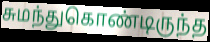
சுமந்துகொண்டிருந்த